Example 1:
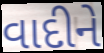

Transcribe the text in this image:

વાદીને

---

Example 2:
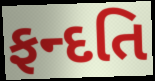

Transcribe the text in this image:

ફન્દતિ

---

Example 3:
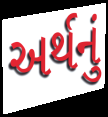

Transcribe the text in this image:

અર્થનું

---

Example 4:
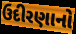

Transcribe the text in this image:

ઉદીરણાનો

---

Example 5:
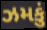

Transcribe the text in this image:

ઝમકું